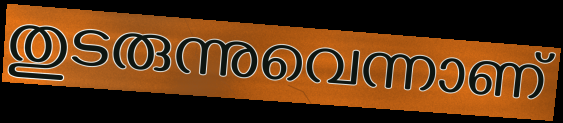
തുടരുന്നുവെന്നാണ്